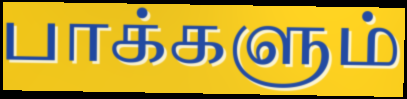
பாக்களும்